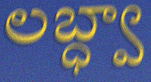
లబ్ధ్వా